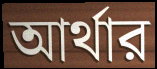
আর্থার